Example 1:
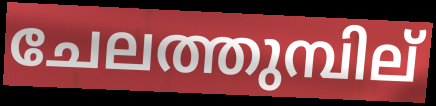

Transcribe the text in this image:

ചേലത്തുമ്പില്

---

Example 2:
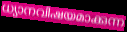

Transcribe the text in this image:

ധ്യാനവിഷയമാക്കുന്ന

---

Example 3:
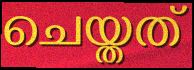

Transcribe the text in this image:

ചെയ്തത്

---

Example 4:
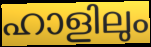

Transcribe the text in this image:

ഹാളിലും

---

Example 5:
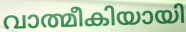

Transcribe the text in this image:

വാത്മീകിയായി